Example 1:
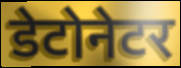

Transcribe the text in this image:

डेटोनेटर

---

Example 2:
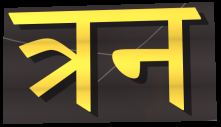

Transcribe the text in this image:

त्रन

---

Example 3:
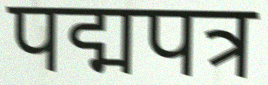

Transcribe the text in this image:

पद्मपत्र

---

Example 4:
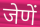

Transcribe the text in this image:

जेणें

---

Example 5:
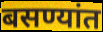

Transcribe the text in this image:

बसण्यांत